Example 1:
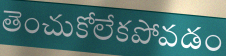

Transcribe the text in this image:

తెంచుకోలేకపోవడం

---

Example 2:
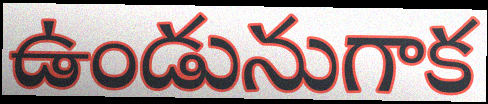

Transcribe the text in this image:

ఉండునుగాక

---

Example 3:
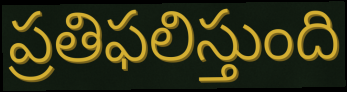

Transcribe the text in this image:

ప్రతిఫలిస్తుంది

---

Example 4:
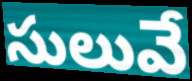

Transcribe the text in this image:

సులువే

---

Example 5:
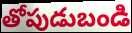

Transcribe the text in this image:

తోపుడుబండి